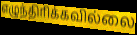
எழுந்திரிக்கவில்லை